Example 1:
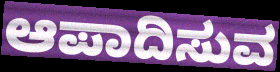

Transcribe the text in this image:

ಆಪಾದಿಸುವ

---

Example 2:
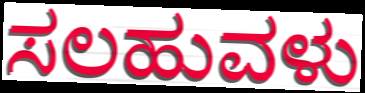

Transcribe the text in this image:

ಸಲಹುವಳು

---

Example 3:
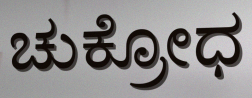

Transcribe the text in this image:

ಚುಕ್ರೋಧ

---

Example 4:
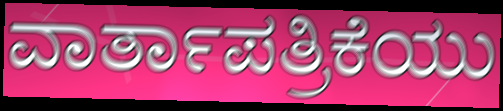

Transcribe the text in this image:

ವಾರ್ತಾಪತ್ರಿಕೆಯು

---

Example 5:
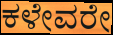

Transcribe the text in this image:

ಕಳೇವರೇ